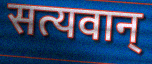
सत्यवान्